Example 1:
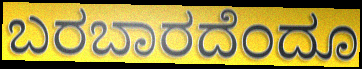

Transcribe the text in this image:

ಬರಬಾರದೆಂದೂ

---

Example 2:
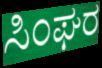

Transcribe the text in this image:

ಸಿಂಘರ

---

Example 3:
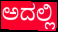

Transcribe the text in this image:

ಅದಲ್ಲಿ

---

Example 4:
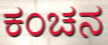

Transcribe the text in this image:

ಕಂಚನ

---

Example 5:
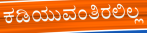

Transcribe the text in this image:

ಕಡಿಯುವಂತಿರಲಿಲ್ಲ